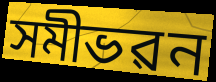
সমীভৱন